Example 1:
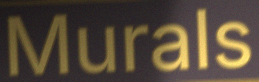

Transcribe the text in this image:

Murals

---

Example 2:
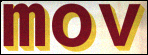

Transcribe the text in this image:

mov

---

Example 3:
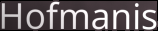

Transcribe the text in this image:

Hofmanis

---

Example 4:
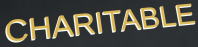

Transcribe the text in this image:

CHARITABLE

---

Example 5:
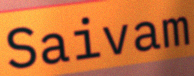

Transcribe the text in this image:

Saivam